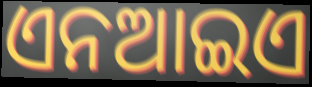
ଏନଆଇଏ